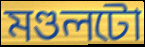
মণ্ডলটো